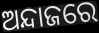
ଅନ୍ଦାଜରେ